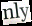
nly